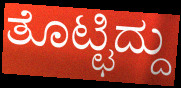
ತೊಟ್ಟಿದ್ದು